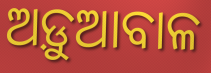
ଅଡ଼ୁଆବାଳ